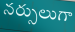
నర్సులుగా